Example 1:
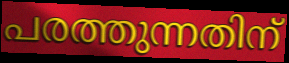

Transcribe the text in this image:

പരത്തുന്നതിന്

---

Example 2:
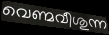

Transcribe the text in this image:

വെണ്മവീശുന്ന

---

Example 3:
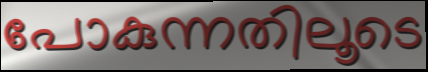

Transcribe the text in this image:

പോകുന്നതിലൂടെ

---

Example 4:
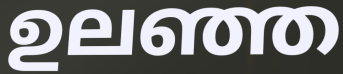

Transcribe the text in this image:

ഉലഞ്ഞ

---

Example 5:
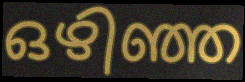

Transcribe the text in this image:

ഒഴിഞ്ഞ